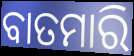
ବାତମାରି